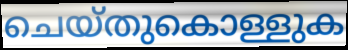
ചെയ്തുകൊള്ളുക